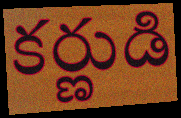
కర్ణుడి